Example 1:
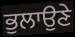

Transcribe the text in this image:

ਭੁਲਾਉਣੇ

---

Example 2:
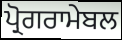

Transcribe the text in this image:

ਪ੍ਰੋਗਰਾਮੇਬਲ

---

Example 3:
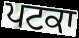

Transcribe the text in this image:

ਪਟਕਾ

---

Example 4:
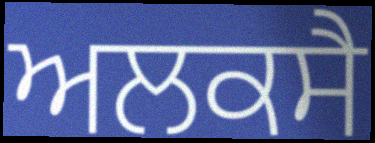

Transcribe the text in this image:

ਅਲਕਸੈ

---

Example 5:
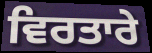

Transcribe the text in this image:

ਵਿਰਤਾਰੇ